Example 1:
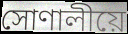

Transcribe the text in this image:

সোণালীয়ে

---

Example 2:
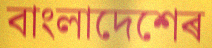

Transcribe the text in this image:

বাংলাদেশেৰ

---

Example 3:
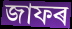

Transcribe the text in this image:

জাফৰ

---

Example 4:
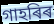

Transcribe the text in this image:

গাহৰিৰ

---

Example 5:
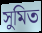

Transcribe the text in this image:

সুমিত